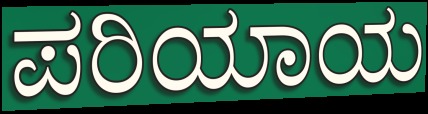
ಪರಿಯಾಯ